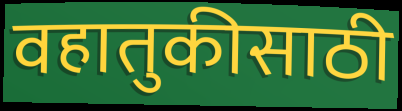
वहातुकीसाठी